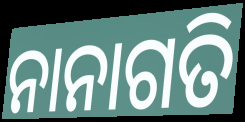
ନାନାଗତି